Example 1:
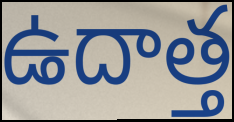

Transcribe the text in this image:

ఉదాత్త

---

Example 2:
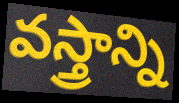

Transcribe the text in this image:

వస్త్రాన్ని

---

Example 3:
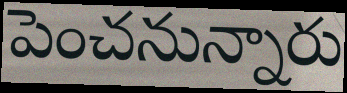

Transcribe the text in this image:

పెంచనున్నారు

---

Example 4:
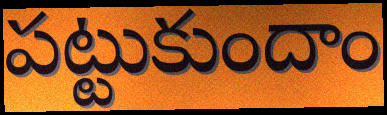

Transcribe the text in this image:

పట్టుకుందాం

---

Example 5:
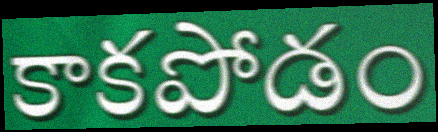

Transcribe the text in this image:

కాకపోడం